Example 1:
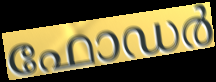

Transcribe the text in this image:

ഫോഡർ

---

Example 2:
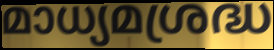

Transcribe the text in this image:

മാധ്യമശ്രദ്ധ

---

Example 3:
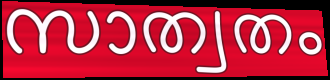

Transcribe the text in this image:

സാത്വതം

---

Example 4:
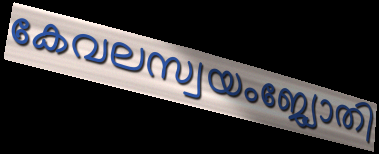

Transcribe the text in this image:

കേവലസ്വയംജ്യോതി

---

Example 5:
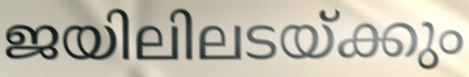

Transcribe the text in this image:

ജയിലിലടയ്ക്കും